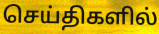
செய்திகளில்